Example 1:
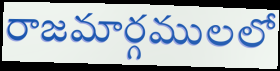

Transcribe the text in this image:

రాజమార్గములలో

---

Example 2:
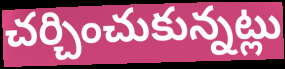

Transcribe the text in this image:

చర్చించుకున్నట్లు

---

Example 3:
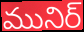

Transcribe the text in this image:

మునిర్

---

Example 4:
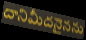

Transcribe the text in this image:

దానిమీదనైనను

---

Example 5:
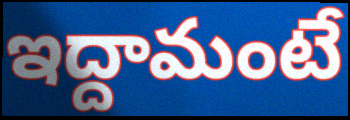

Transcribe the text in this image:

ఇద్దామంటే